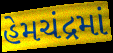
હેમચંદ્રમાં